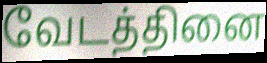
வேடத்தினை